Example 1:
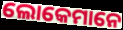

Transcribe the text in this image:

ଲୋକେମାନେ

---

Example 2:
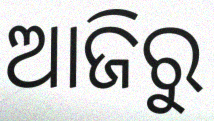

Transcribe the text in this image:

ଆଜିରୁ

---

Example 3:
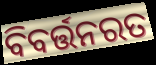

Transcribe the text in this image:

ବିବର୍ତ୍ତନରତ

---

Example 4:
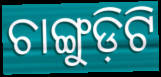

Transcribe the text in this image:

ଚାଙ୍ଗୁଡ଼ିଟି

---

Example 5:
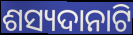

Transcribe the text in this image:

ଶସ୍ୟଦାନାଟି